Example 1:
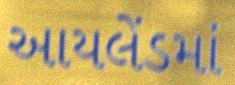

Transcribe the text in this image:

આયલેંડમાં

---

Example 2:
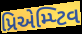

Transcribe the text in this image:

પ્રિએમ્પ્ટિવ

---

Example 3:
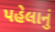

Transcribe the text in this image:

પહેલાનું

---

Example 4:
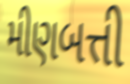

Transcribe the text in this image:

મીણબત્તી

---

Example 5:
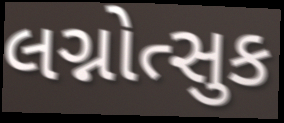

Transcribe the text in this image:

લગ્નોત્સુક